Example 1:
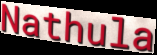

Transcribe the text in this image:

Nathula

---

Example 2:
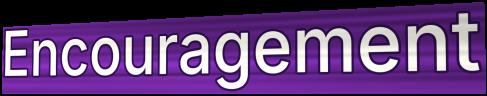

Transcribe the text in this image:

Encouragement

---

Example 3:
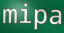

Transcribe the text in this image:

mipa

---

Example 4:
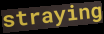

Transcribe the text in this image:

straying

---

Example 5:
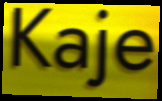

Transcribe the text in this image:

Kaje